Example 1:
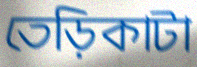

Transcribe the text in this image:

তেড়িকাটা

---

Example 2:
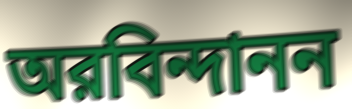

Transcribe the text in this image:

অরবিন্দানন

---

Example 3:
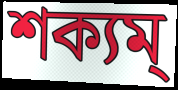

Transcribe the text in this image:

শক্যম্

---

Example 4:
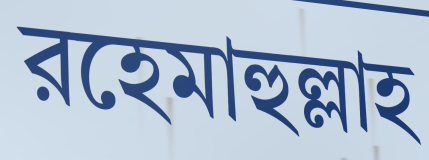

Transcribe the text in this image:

রহেমাহুল্লাহ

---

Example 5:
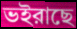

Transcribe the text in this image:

ভইরাছে